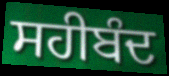
ਸਹੀਬੰਦ